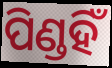
ପିଣ୍ଡହିଁ